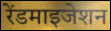
रेंडमाइजेशन